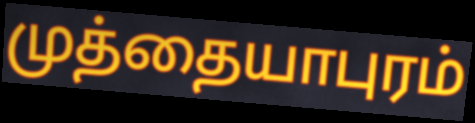
முத்தையாபுரம்